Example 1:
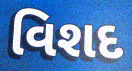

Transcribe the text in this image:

વિશદ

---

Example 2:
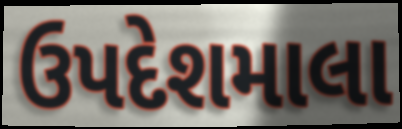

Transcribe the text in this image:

ઉપદેશમાલા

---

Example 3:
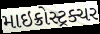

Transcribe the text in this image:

માઇક્રોસ્ટ્રક્ચર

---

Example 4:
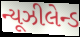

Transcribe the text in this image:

ન્યૂઝીલેન્ડ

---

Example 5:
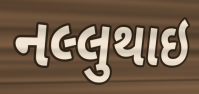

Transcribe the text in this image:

નલ્લુથાઇ